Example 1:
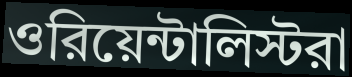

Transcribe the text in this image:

ওরিয়েন্টালিস্টরা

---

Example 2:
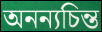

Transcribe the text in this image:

অনন্যচিন্ত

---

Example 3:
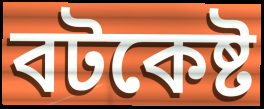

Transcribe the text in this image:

বটকেষ্ট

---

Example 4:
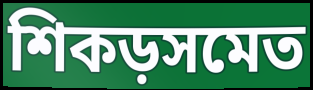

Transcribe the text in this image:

শিকড়সমেত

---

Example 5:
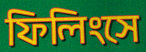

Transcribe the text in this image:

ফিলিংসে